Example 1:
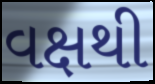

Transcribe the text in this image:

વક્ષથી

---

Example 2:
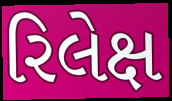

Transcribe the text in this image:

રિલેક્ષ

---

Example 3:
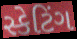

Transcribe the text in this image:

સ્કેટિંગ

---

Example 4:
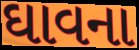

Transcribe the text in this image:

ઘાવના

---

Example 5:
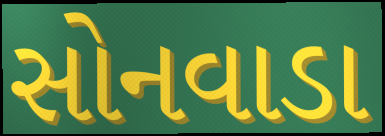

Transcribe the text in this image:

સોનવાડા